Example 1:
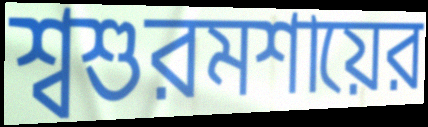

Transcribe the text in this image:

শ্বশুরমশায়ের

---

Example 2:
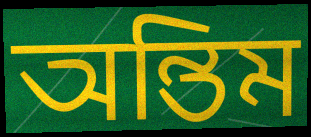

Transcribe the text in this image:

অন্তিম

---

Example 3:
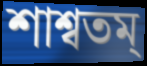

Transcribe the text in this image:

শাশ্বতম্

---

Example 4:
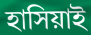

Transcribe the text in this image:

হাসিয়াই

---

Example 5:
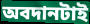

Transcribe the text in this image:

অবদানটাই